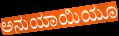
ಅನುಯಾಯಿಯೂ